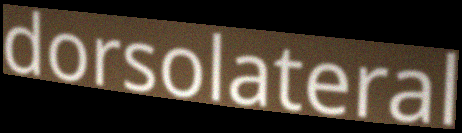
dorsolateral